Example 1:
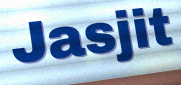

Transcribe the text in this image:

Jasjit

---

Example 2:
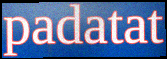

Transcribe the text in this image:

padatat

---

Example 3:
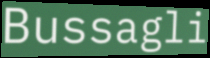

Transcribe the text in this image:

Bussagli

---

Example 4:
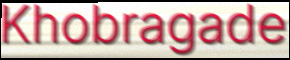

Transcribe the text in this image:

Khobragade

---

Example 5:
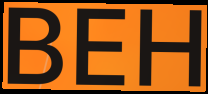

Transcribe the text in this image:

BEH